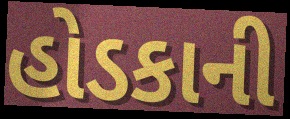
હોડકાની